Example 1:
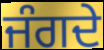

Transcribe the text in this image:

ਜੰਗਦੇ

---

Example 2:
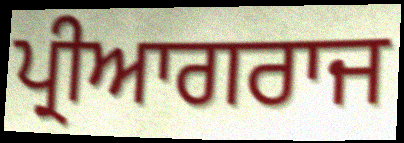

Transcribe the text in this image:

ਪ੍ਰੀਆਗਰਾਜ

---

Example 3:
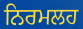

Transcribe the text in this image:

ਨਿਰਮਲਹ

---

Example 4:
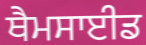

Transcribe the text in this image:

ਥੈਮਸਾਈਡ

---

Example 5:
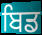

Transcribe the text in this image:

ਬਿਡ